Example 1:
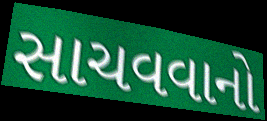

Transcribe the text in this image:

સાચવવાનો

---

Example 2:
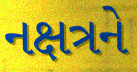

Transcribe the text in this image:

નક્ષત્રને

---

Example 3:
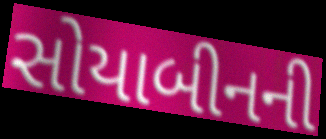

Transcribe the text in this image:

સોયાબીનની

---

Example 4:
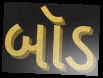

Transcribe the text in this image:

બૉડ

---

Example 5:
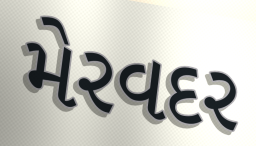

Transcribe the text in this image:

મેરવદર